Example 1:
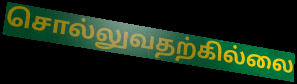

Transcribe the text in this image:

சொல்லுவதற்கில்லை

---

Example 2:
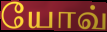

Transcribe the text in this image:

யோவ்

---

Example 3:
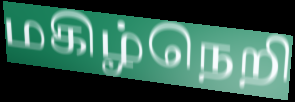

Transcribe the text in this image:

மகிழ்நெறி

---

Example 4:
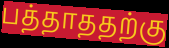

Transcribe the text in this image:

பத்தாததற்கு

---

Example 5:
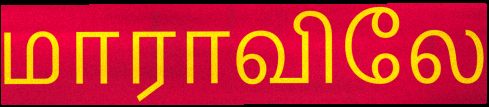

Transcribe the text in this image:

மாராவிலே